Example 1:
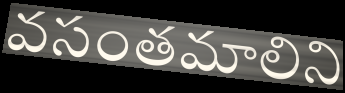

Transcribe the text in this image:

వసంతమాలిని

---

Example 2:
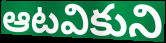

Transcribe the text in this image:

ఆటవికుని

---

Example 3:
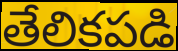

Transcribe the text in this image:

తేలికపడి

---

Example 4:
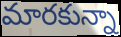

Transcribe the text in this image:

మారకున్నా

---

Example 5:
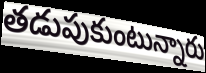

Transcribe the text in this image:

తడుపుకుంటున్నారు